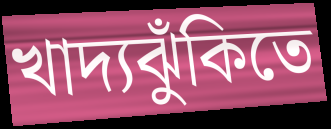
খাদ্যঝুঁকিতে